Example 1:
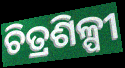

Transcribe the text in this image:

ଚିତ୍ରଶିଳ୍ପୀ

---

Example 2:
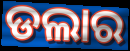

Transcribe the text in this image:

ଡଲାର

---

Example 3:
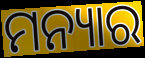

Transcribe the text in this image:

ମନ୍ୟାର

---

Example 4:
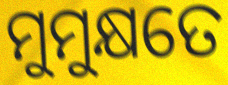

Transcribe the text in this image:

ମୁମୁକ୍ଷତେ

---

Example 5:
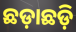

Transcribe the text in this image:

ଛଡ଼ାଛଡ଼ି